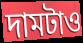
দামটাও